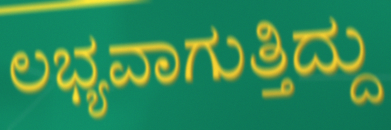
ಲಭ್ಯವಾಗುತ್ತಿದ್ದು